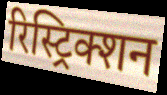
रिस्ट्रिक्शन